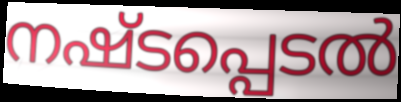
നഷ്ടപ്പെടൽ